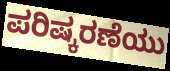
ಪರಿಷ್ಕರಣೆಯು